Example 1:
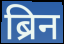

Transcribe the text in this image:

ब्रिन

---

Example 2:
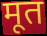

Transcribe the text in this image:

मूत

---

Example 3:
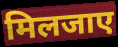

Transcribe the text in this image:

मिलजाए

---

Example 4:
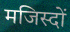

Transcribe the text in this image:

मजिस्दों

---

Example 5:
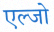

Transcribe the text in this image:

एल्जो